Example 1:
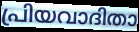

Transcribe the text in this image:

പ്രിയവാദിതാ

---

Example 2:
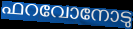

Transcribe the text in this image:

ഫറവോനോടു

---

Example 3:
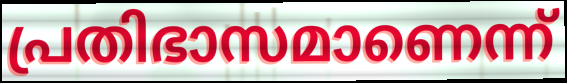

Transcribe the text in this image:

പ്രതിഭാസമാണെന്ന്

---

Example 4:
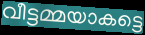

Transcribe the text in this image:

വീട്ടമ്മയാകട്ടെ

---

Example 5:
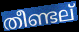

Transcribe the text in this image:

തീണ്ടല്